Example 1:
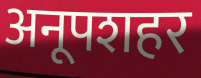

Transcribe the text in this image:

अनूपशहर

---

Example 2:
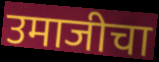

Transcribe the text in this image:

उमाजीचा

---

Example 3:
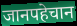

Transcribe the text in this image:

जानपहेचान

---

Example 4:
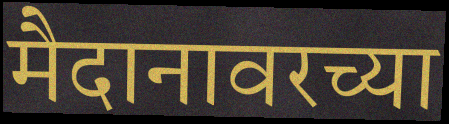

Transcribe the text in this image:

मैदानावरच्या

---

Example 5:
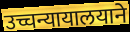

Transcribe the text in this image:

उच्चन्यायालयाने